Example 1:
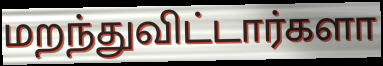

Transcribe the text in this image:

மறந்துவிட்டார்களா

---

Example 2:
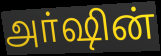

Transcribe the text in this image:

அர்ஷின்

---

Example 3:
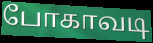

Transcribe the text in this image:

போகாவடி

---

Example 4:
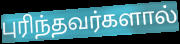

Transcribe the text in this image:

புரிந்தவர்களால்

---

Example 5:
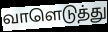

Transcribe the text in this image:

வாளெடுத்து